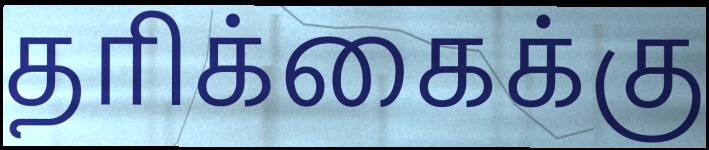
தரிக்கைக்கு